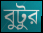
বুটুর